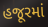
હજૂરમાં